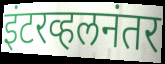
इंटरव्हलनंतर